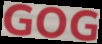
GOG